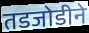
तडजोडीने